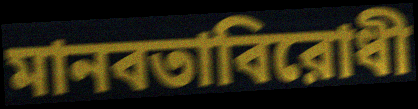
মানবতাবিরোধী